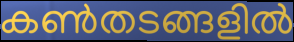
കൺതടങ്ങളിൽ